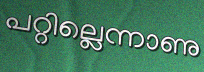
പറ്റില്ലെന്നാണു